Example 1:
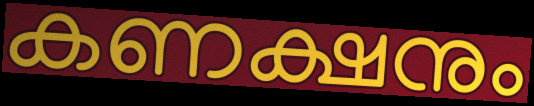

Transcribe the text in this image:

കണക്ഷനും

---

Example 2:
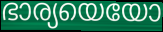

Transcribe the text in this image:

ഭാര്യയെയോ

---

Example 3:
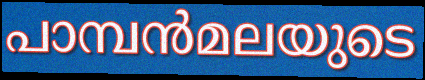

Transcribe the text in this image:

പാമ്പൻമലയുടെ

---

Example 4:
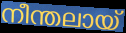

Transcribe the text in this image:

നീന്തലായ്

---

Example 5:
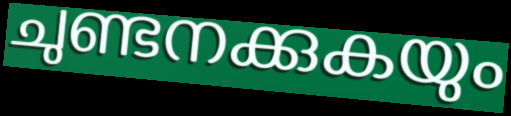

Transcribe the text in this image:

ചുണ്ടനക്കുകയും